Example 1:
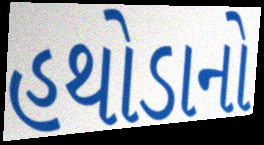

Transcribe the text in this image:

હથોડાનો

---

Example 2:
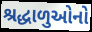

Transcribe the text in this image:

શ્રદ્ધાળુઓનો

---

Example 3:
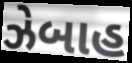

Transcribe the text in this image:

ઝેબાહ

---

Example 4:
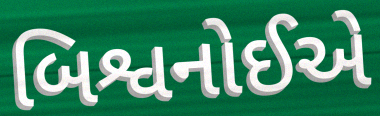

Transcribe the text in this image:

બિશ્વનોઈએ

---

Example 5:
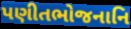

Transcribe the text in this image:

પણીતભોજનાનિ